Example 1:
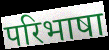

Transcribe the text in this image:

परिभाषा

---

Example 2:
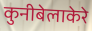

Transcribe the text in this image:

कुनीबेलाकेरे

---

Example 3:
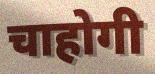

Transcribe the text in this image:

चाहोगी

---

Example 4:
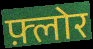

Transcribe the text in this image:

फ़्लोर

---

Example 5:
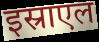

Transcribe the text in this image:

इस्राएल